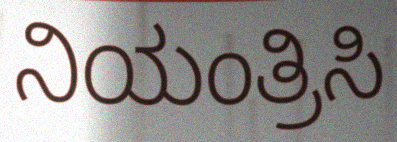
ನಿಯಂತ್ರಿಸಿ